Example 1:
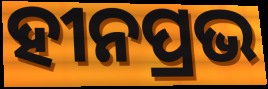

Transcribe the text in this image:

ହୀନପ୍ରଭ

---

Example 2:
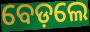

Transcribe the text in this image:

ବେଡ଼ଲେ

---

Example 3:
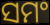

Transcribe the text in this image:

ସମଂ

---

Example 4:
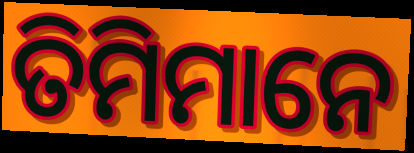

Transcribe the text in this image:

ତିମିମାନେ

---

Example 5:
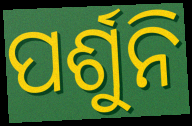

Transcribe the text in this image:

ପର୍ଶୁନି